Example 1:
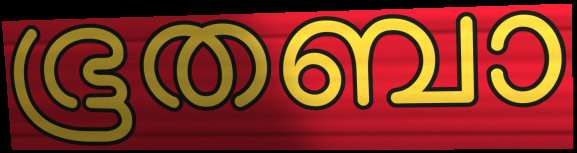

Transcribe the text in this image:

ഭൂതബാ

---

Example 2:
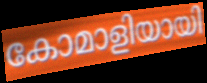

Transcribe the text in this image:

കോമാളിയായി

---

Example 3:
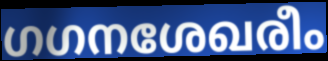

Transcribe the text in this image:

ഗഗനശേഖരീം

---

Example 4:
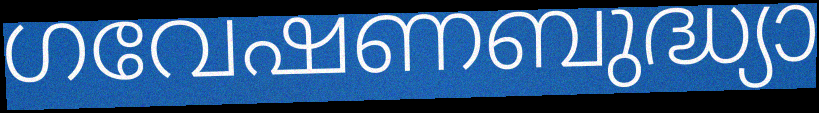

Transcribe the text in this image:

ഗവേഷണബുദ്ധ്യാ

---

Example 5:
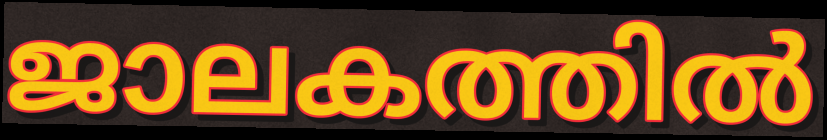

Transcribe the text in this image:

ജാലകത്തിൽ